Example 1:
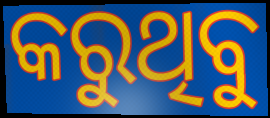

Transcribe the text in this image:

କରୁଥିବୁ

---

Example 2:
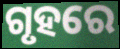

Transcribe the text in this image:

ଗୃହରେ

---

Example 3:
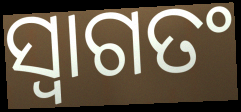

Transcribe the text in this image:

ସ୍ୱାଗତଂ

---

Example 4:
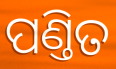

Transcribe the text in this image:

ପଣ୍ତିତ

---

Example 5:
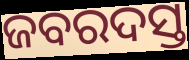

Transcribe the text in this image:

ଜବରଦସ୍ତ